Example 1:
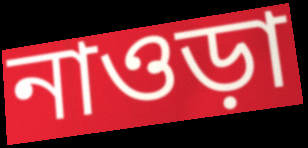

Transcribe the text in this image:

নাওড়া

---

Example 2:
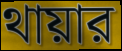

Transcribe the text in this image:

থায়ার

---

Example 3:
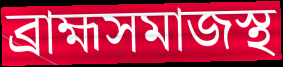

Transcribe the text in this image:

ব্রাহ্মসমাজস্থ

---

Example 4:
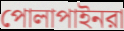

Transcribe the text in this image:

পোলাপাইনরা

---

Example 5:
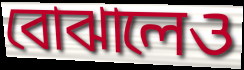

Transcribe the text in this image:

বোঝালেও